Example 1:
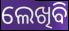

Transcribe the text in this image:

ଲେଖିବି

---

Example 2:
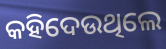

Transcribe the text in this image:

କହିଦେଉଥିଲେ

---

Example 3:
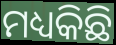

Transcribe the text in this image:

ମଧ୍ୟକିଛି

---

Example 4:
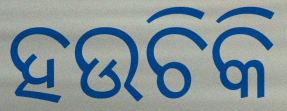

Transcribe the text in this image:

ହଉଚିକି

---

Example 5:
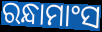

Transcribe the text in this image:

ରନ୍ଧାମାଂସ